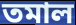
তমাল